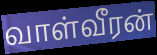
வாள்வீரன்